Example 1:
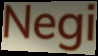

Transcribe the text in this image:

Negi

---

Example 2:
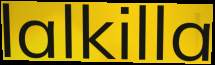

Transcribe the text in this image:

lalkilla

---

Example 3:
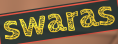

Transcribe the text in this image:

swaras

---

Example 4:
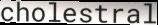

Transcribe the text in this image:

cholestral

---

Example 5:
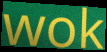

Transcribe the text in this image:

wok